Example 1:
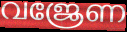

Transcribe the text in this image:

വജ്രേണ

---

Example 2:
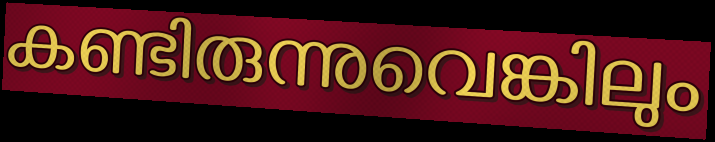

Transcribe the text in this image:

കണ്ടിരുന്നുവെങ്കിലും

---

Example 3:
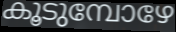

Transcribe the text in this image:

കൂടുമ്പോഴേ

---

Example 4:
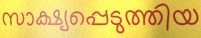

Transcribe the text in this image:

സാക്ഷ്യപ്പെടുത്തിയ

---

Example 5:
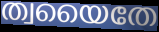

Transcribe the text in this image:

ത്വയൈതേ